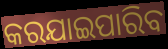
କରଯାଇପାରିବ